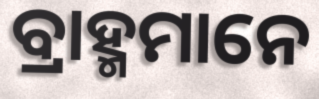
ବ୍ରାହ୍ମମାନେ